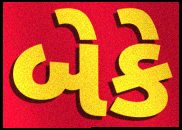
બેકે